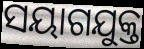
ସୟାଗଯୁକ୍ତ